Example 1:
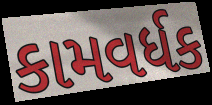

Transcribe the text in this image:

કામવર્ધક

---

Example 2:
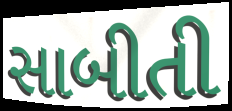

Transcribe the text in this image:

સાબીતી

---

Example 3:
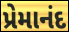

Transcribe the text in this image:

પ્રેમાનંદ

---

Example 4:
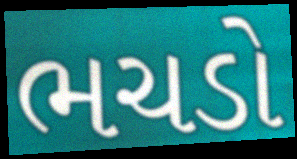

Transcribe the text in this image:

ભચડો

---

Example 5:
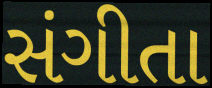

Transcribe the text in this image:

સંગીતા